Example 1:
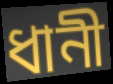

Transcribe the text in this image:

ধানী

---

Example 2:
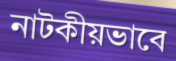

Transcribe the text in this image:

নাটকীয়ভাবে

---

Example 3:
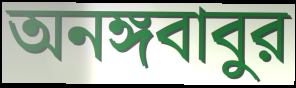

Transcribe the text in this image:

অনঙ্গবাবুর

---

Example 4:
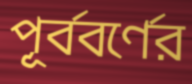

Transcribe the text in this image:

পূর্ববর্ণের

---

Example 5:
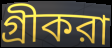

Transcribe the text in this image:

গ্রীকরা